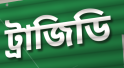
ট্রাজিডি